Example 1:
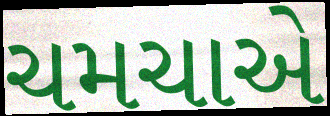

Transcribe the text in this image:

ચમચાએ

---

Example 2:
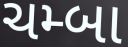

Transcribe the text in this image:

ચમ્બા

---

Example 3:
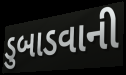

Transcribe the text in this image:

ડુબાડવાની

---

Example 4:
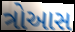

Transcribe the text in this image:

ત્રોઆસ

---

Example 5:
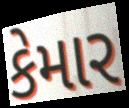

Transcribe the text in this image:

કેમાર